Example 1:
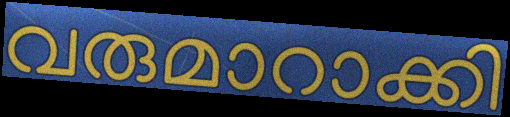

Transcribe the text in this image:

വരുമാറാക്കി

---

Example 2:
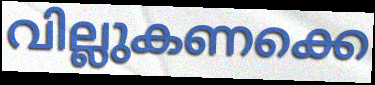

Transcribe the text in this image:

വില്ലുകണക്കെ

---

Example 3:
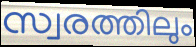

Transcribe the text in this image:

സ്വരത്തിലും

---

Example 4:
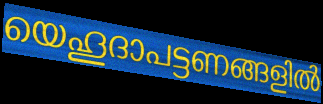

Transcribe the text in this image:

യെഹൂദാപട്ടണങ്ങളിൽ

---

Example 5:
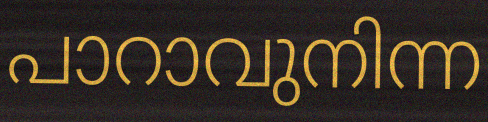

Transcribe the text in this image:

പാറാവുനിന്ന